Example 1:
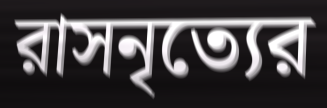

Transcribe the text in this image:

রাসনৃত্যের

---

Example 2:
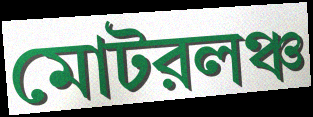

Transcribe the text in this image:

মোটরলঞ্চ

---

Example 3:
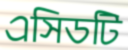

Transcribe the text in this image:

এসিডটি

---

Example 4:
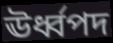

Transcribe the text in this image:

ঊর্ধ্বপদ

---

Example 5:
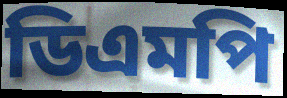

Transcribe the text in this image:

ডিএমপি